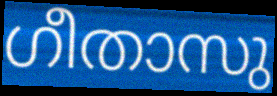
ഗീതാസു